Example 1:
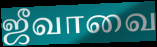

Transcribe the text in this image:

ஜீவாவை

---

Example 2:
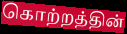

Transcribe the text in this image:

கொற்றத்தின்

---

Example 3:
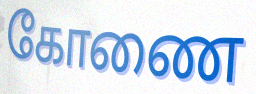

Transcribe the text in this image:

கோணை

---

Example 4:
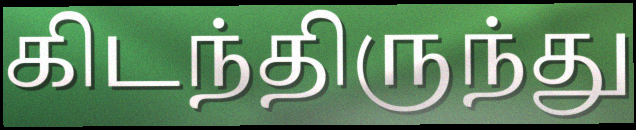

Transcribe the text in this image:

கிடந்திருந்து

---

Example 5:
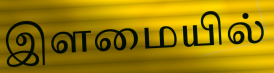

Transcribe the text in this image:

இளமையில்